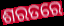
ଶରତରେ